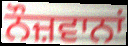
ਨੌਜ਼ਵਾਨਾਂ